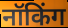
नॉकिंग